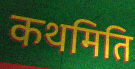
कथमिति